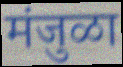
मंजुळा